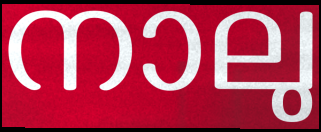
നാലു